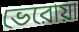
ভেরোয়া